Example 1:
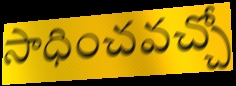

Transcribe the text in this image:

సాధించవచ్చో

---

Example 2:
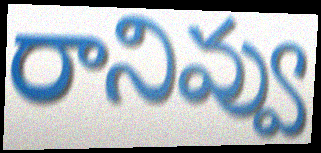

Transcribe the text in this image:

రానివ్వు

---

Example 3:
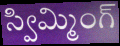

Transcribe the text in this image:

స్విమ్మింగ్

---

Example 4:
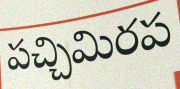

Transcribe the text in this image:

పచ్చిమిరప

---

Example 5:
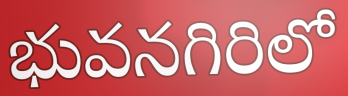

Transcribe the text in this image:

భువనగిరిలో